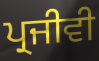
ਪ੍ਰਜੀਵੀ